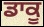
ਡਾਕੂ